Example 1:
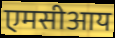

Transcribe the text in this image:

एमसीआय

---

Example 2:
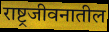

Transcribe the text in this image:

राष्ट्रजीवनातील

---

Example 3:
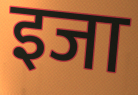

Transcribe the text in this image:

इजा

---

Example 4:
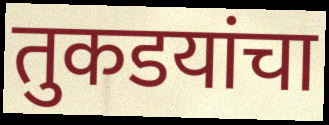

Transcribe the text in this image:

तुकडयांचा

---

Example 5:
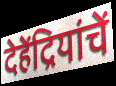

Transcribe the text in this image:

देहेंद्रियांचें